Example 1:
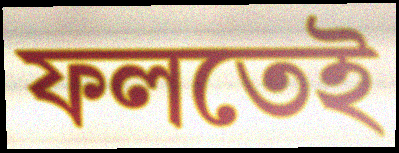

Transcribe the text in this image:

ফলতেই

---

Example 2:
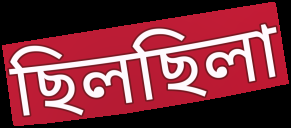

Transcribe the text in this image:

ছিলছিলা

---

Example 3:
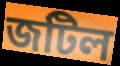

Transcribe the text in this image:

জটিল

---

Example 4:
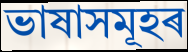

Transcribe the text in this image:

ভাষাসমূহৰ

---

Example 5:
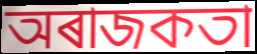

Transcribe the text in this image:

অৰাজকতা